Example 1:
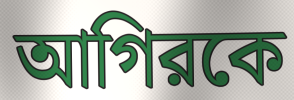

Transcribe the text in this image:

আগিরকে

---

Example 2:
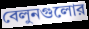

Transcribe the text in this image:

বেলুনগুলোর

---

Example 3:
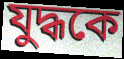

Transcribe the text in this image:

যুদ্ধকে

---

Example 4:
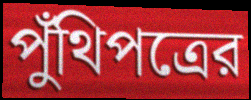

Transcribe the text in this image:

পুঁথিপত্রের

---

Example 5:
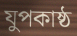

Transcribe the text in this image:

যুপকাষ্ঠ